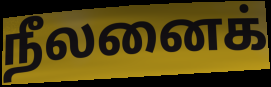
நீலனைக்